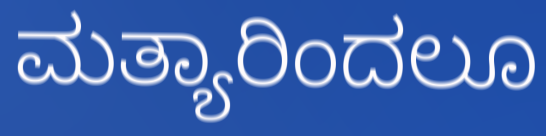
ಮತ್ಯಾರಿಂದಲೂ